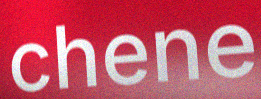
chene